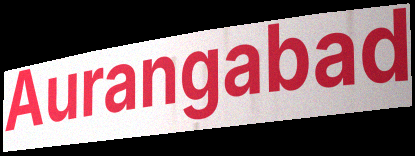
Aurangabad